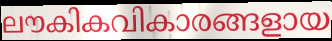
ലൗകികവികാരങ്ങളായ